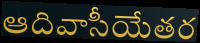
ఆదివాసీయేతర